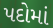
પદોમાં